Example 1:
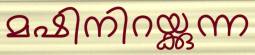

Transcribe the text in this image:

മഷിനിറയ്ക്കുന്ന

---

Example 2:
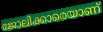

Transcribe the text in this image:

ജോലിക്കാരെയാണ്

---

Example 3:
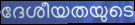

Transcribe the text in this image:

ദേശീയതയുടെ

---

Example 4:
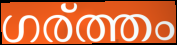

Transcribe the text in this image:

ഗര്ത്തം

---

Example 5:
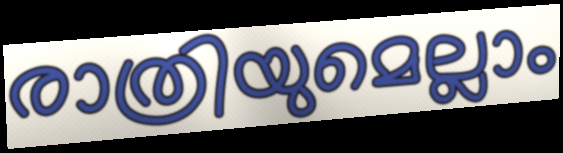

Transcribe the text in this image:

രാത്രിയുമെല്ലാം